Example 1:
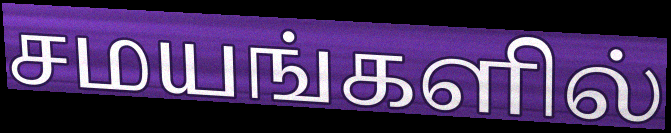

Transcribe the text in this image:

சமயங்களில்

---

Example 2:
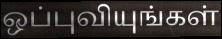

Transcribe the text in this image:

ஒப்புவியுங்கள்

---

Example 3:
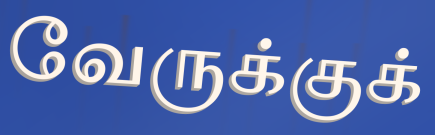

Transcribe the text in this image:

வேருக்குக்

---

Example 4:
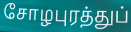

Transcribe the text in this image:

சோழபுரத்துப்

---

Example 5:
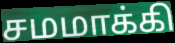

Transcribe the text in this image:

சமமாக்கி